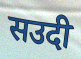
सउदी